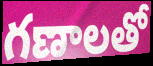
గణాలతో